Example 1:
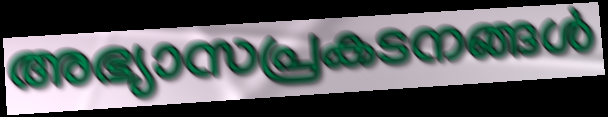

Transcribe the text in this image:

അഭ്യാസപ്രകടനങ്ങൾ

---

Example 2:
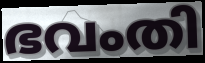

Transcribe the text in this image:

ഭവംതി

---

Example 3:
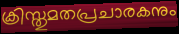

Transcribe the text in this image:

ക്രിസ്തുമതപ്രചാരകനും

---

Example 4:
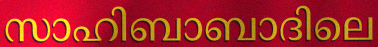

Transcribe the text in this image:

സാഹിബാബാദിലെ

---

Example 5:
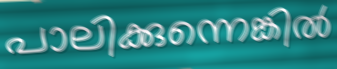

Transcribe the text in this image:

പാലിക്കുന്നെങ്കിൽ